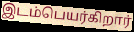
இடம்பெயர்கிறார்